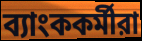
ব্যাংককর্মীরা